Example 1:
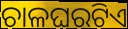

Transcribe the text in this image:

ଚାଳଘରଟିଏ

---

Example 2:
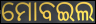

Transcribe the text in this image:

ମୋବଇଲ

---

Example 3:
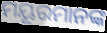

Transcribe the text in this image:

ମୟୂରମାନଙ୍କ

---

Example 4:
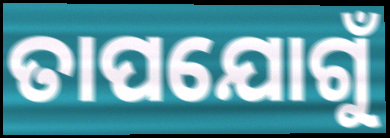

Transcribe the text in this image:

ତାପଯୋଗୁଁ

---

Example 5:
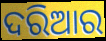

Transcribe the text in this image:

ଦରିଆର